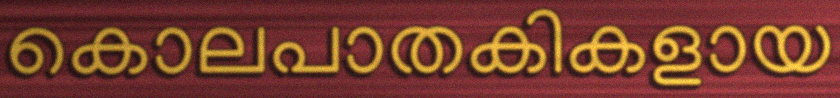
കൊലപാതകികളായ